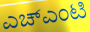
ಎಚ್ಎಂಟಿ